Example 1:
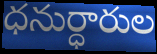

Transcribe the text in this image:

ధనుర్ధారుల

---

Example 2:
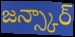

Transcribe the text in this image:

జన్స్కార్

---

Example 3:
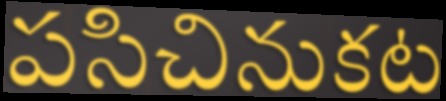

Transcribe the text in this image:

పసిచినుకట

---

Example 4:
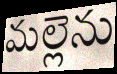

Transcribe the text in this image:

మల్లెను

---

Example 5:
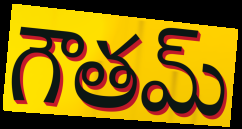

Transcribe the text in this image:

గౌతమ్